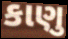
કાણુ